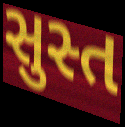
સુસ્ત